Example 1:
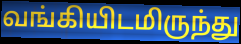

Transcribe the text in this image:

வங்கியிடமிருந்து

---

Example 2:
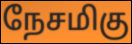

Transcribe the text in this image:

நேசமிகு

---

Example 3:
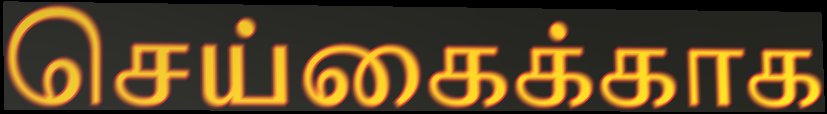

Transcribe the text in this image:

செய்கைக்காக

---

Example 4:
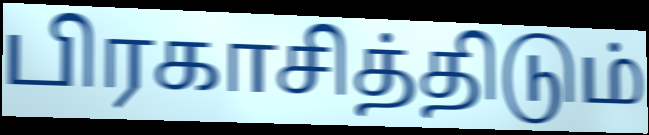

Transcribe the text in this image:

பிரகாசித்திடும்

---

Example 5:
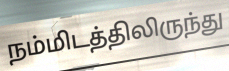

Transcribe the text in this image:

நம்மிடத்திலிருந்து